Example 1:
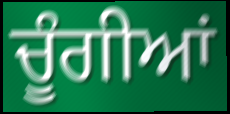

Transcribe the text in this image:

ਚੂੰਗੀਆਂ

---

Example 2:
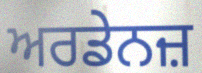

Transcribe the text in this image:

ਅਰਡੇਨਜ਼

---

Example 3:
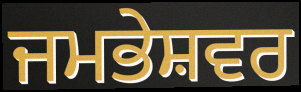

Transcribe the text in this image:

ਜਮਭੇਸ਼ਵਰ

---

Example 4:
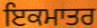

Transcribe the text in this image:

ਇਕਮਾਤਰ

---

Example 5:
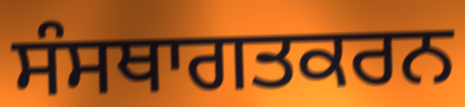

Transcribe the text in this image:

ਸੰਸਥਾਗਤਕਰਨ